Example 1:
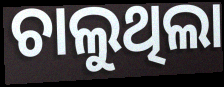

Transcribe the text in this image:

ଚାଲୁଥିଲା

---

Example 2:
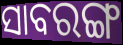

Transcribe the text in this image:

ସାବରଙ୍ଗ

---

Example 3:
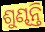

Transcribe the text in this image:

ଶୁଣ୍ଢନ୍ତି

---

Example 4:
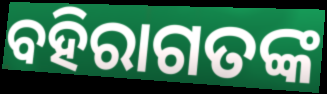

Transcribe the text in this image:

ବହିରାଗତଙ୍କ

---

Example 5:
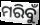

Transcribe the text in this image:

ମରିବୁଁ